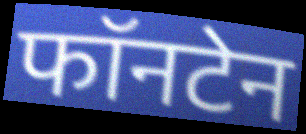
फॉनटेन